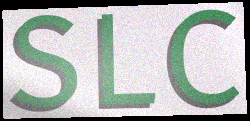
SLC